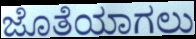
ಜೊತೆಯಾಗಲು